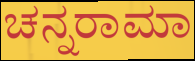
ಚನ್ನರಾಮಾ